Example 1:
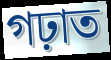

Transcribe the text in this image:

গঢ়াত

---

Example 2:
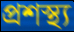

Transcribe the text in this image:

প্ৰশস্থ্য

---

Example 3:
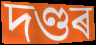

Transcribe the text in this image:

দণ্ডৰ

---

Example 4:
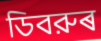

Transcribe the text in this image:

ডিবৰুৰ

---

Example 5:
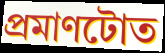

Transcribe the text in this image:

প্ৰমাণটোত